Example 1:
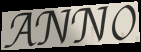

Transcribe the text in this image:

ANNO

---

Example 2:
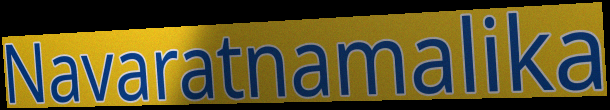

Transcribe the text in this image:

Navaratnamalika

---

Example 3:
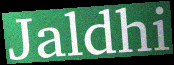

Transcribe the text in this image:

Jaldhi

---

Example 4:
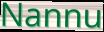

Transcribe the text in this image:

Nannu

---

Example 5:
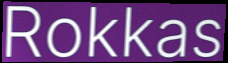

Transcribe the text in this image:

Rokkas